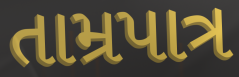
તામ્રપાત્ર